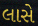
લાસે